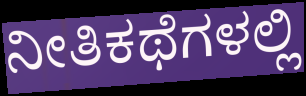
ನೀತಿಕಥೆಗಳಲ್ಲಿ